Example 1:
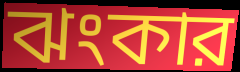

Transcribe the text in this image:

ঝংকার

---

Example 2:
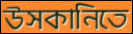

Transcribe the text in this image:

উসকানিতে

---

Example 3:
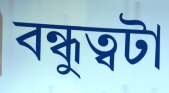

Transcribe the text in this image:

বন্ধুত্বটা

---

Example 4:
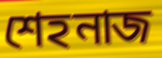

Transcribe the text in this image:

শেহনাজ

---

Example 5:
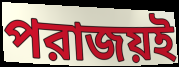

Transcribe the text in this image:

পরাজয়ই